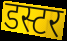
डस्टर